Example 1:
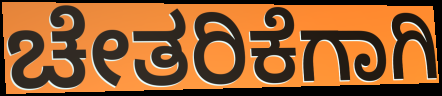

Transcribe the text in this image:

ಚೇತರಿಕೆಗಾಗಿ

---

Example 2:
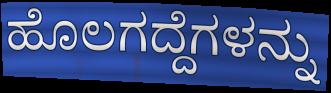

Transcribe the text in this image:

ಹೊಲಗದ್ದೆಗಳನ್ನು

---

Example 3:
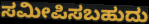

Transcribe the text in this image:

ಸಮೀಪಿಸಬಹುದು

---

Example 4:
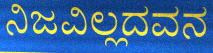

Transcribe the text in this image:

ನಿಜವಿಲ್ಲದವನ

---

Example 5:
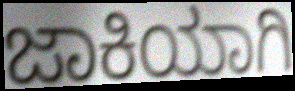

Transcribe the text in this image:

ಜಾಕಿಯಾಗಿ